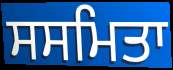
ਸਸਮਿਤਾ